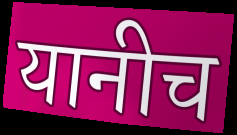
यानीच